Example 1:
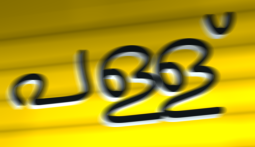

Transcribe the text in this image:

പള്ള്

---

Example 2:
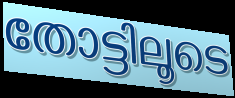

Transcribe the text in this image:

തോട്ടിലൂടെ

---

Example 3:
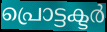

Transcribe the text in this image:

പ്രൊട്ടക്ടർ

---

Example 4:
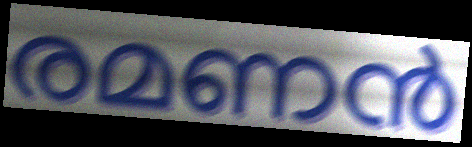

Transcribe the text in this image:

രമണൻ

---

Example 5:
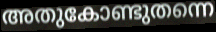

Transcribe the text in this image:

അതുകോണ്ടുതന്നെ